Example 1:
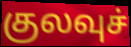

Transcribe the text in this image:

குலவுச்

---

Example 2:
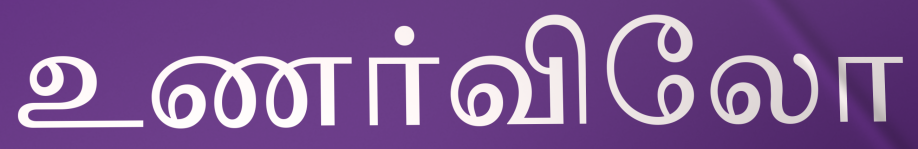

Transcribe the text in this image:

உணர்விலோ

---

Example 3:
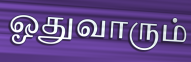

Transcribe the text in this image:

ஓதுவாரும்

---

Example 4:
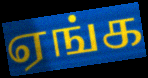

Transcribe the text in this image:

ஏங்க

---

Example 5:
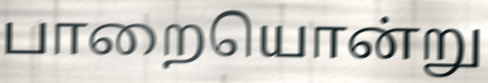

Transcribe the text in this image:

பாறையொன்று